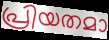
പ്രിയതമാ